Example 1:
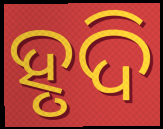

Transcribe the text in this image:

ହୃଦି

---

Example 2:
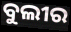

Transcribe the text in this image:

ବୁଲୀର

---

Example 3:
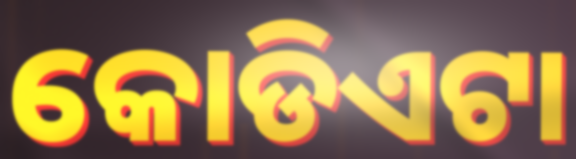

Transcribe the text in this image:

କୋଡିଏଟା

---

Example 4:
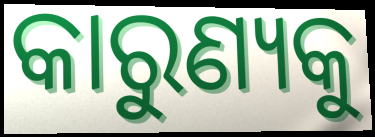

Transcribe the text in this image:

କାରୁଣ୍ୟକୁ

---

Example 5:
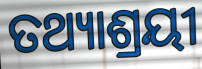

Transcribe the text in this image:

ତଥ୍ୟାଶ୍ରୟୀ